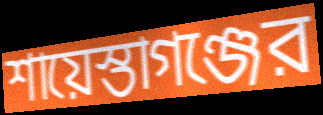
শায়েস্তাগঞ্জের